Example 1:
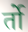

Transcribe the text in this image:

र्तो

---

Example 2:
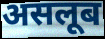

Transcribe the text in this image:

असलूब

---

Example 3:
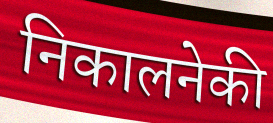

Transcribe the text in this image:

निकालनेकी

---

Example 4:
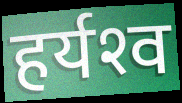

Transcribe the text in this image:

हर्यश्व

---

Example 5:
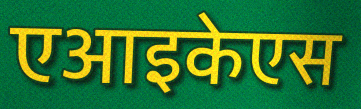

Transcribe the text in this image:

एआइकेएस